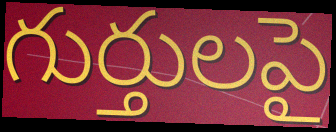
గుర్తులపై